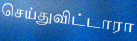
செய்துவிட்டாரா